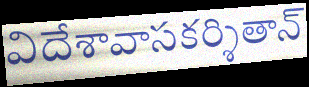
విదేశావాసకర్శితాన్